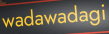
wadawadagi